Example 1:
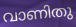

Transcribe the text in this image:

വാണിതു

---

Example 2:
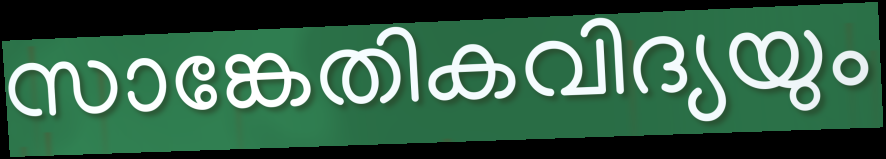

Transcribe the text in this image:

സാങ്കേതികവിദ്യയും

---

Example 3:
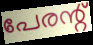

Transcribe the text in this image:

പേരന്റ്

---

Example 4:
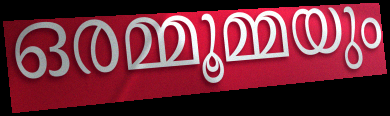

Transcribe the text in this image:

ഒരമ്മൂമ്മയും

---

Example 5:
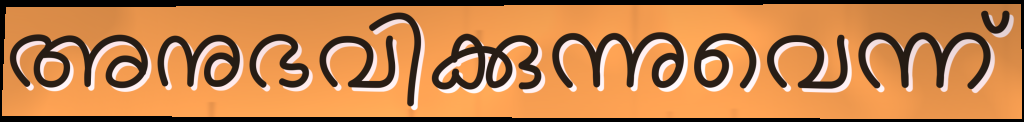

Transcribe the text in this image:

അനുഭവിക്കുന്നുവെന്ന്